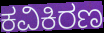
ಕವಿಕಿರಣ